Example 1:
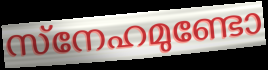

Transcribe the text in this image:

സ്‌നേഹമുണ്ടോ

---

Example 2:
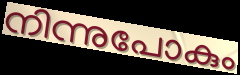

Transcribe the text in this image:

നിന്നുപോകും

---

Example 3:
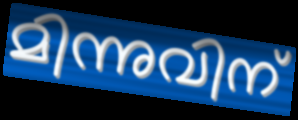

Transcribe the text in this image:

മിന്നുവിന്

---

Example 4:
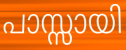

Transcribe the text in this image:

പാസ്സായി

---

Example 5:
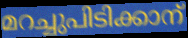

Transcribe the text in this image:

മറച്ചുപിടിക്കാന്